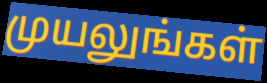
முயலுங்கள்